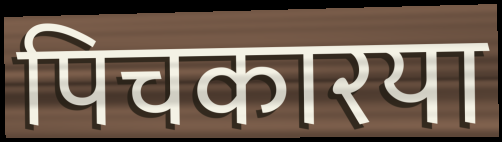
पिचकारया